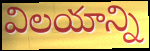
విలయాన్ని